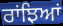
ਰਾਂਝਿਆਂ